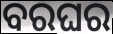
ବରଘର